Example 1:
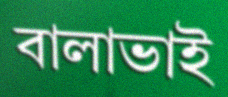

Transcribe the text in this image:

বালাভাই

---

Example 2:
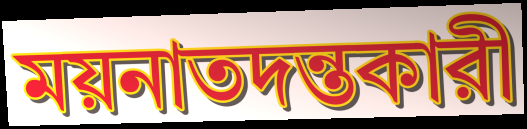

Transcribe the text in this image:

ময়নাতদন্তকারী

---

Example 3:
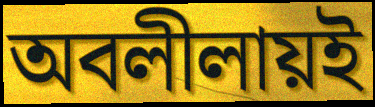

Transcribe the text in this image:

অবলীলায়ই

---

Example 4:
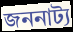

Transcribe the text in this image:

জননাট্য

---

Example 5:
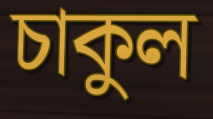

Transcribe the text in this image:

চাকুল